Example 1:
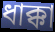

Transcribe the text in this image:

ধাক্কা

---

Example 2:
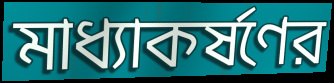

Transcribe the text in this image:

মাধ্যাকর্ষণের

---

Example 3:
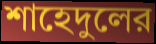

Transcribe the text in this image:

শাহেদুলের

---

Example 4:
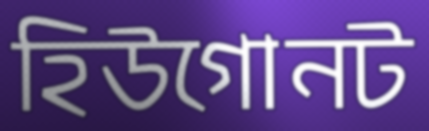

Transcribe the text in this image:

হিউগোনট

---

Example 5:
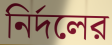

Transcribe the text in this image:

নির্দলের